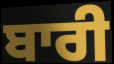
ਬਾਰੀ